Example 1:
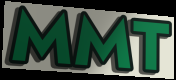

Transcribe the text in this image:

MMT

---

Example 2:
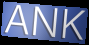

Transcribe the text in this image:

ANK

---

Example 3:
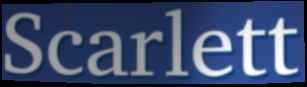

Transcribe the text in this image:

Scarlett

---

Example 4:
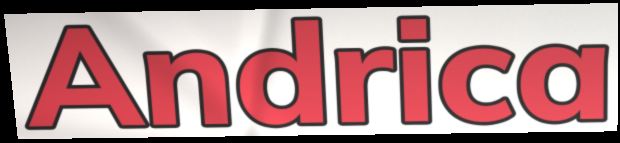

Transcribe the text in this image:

Andrica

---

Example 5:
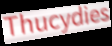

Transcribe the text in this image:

Thucydies